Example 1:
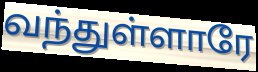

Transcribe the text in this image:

வந்துள்ளாரே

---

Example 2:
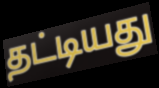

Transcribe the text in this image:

தட்டியது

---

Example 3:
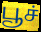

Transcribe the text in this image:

பூச்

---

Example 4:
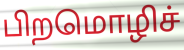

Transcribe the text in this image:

பிறமொழிச்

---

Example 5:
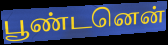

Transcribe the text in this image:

பூண்டனென்